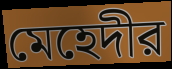
মেহেদীর